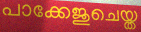
പാക്കേജുചെയ്ത